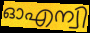
ഓഎന്വി